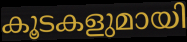
കൂടകളുമായി